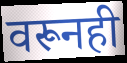
वरूनही